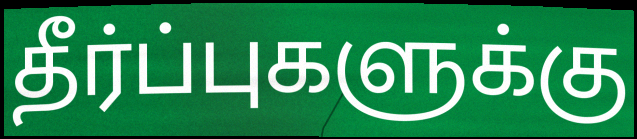
தீர்ப்புகளுக்கு